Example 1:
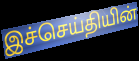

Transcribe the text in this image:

இச்செய்தியின்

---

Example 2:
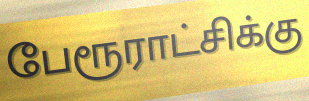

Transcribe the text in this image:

பேரூராட்சிக்கு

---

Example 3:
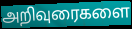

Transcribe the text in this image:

அறிவுரைகளை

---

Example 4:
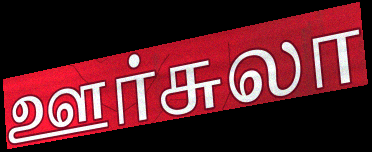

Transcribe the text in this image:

ஊர்சுலா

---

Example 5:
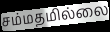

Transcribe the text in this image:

சம்மதமில்லை